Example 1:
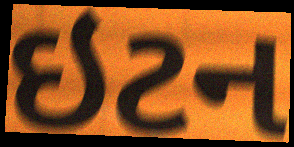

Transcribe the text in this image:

ઇટન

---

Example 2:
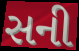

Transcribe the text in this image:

સની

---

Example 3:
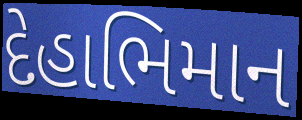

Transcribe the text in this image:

દેહાભિમાન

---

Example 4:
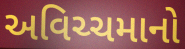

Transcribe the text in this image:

અવિચ્ચમાનો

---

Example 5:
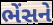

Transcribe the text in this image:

ભેંસને